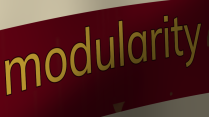
modularity